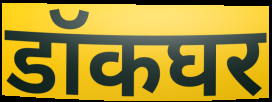
डॉकघर